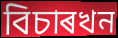
বিচাৰখন